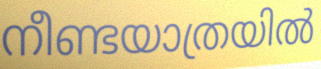
നീണ്ടയാത്രയിൽ